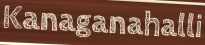
Kanaganahalli